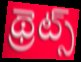
థ్రెట్స్